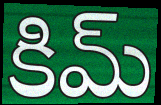
కిమ్